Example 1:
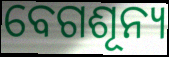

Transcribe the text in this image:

ବେଗଶୂନ୍ୟ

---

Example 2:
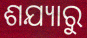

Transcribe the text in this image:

ଶଯ୍ୟାରୁ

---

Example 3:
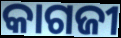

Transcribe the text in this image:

କାଗଜୀ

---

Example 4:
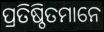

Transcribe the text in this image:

ପ୍ରତିଷ୍ଠିତମାନେ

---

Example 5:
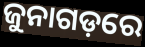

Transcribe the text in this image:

ଜୁନାଗଡ଼ରେ